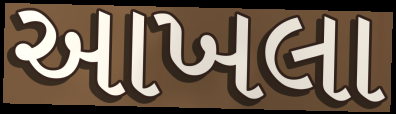
આખલા